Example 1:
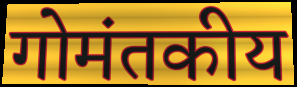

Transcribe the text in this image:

गोमंतकीय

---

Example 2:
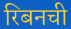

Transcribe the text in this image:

रिबनची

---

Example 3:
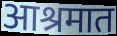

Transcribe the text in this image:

आश्रमात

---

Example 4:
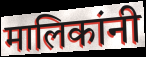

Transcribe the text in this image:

मालिकांनी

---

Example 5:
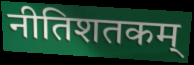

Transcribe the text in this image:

नीतिशतकम्